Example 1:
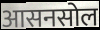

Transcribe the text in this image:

आसनसोल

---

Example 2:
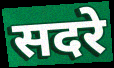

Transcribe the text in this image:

सदरे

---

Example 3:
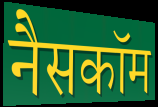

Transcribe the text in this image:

नैसकॉम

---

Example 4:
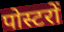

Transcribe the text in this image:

पोस्टरों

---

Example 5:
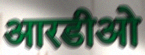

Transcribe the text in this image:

आरडीओ